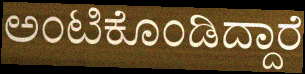
ಅಂಟಿಕೊಂಡಿದ್ದಾರೆ